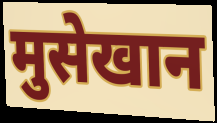
मुसेखान